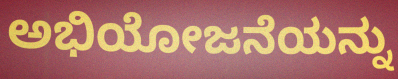
ಅಭಿಯೋಜನೆಯನ್ನು